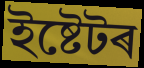
ইষ্টেটৰ